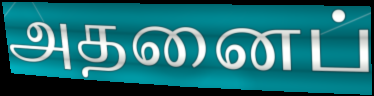
அதனைப்